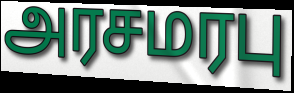
அரசமரபு